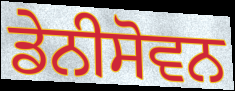
ਡੇਨੀਸੋਵਨ